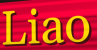
Liao